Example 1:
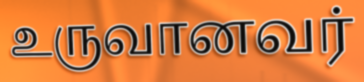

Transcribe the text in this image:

உருவானவர்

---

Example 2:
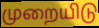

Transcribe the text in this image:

முறையிடு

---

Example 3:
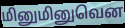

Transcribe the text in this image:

மினுமினுவென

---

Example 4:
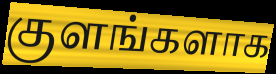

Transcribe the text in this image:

குளங்களாக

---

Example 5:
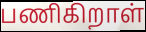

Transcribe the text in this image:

பணிகிறாள்